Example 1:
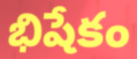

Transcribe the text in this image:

భిషేకం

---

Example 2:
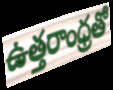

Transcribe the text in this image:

ఉత్తరాంధ్రతో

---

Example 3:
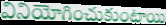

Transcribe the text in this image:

వినియోగించుకుంటాయి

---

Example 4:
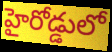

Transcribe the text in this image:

హైరోడ్డులో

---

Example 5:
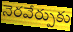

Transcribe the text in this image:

నెరవేర్పుకు